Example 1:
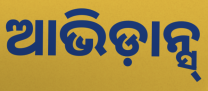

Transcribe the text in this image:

ଆଭିଡ଼ାନ୍ସ୍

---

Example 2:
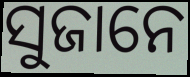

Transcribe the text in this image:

ସୁଜାନେ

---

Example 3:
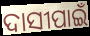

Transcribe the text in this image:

ଦାସୀପାଇଁ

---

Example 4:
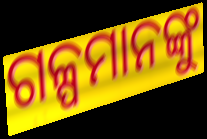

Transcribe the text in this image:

ଗଳ୍ପମାନଙ୍କୁ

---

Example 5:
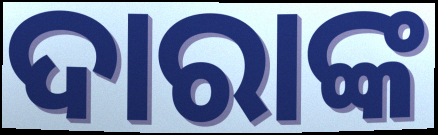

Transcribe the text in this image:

ଦାରାଙ୍କ